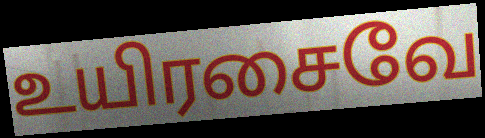
உயிரசைவே